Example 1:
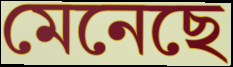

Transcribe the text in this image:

মেনেছে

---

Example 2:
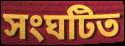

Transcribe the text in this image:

সংঘটিত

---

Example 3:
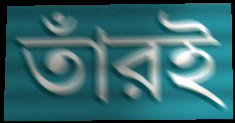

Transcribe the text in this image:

তাঁরই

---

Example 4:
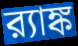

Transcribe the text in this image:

র‍্যাঙ্ক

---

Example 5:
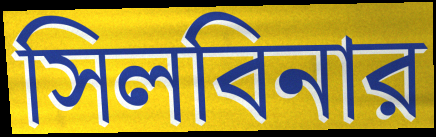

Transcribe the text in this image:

সিলবিনার